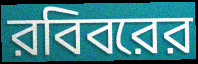
রবিবরের